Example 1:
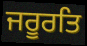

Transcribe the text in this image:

ਜਰੂਰਤਿ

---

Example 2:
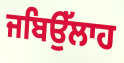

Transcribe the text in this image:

ਜਬਿਉੱਲਾਹ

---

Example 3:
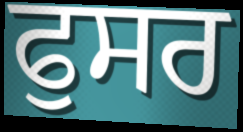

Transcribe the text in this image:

ਫੁਸਰ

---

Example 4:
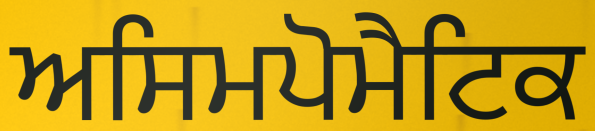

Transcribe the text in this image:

ਅਸਿਮਪੋਮੈਟਿਕ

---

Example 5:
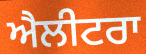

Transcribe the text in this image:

ਐਲੀਟਰਾ